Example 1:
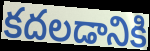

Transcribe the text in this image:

కదలడానికి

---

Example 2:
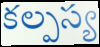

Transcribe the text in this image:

కల్పస్య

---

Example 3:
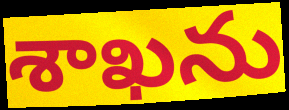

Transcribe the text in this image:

శాఖను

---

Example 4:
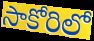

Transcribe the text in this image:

సాకోరిలో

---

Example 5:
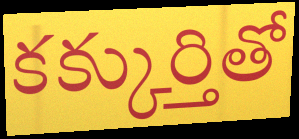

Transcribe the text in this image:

కక్కుర్తితో